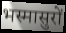
भस्मासुरों